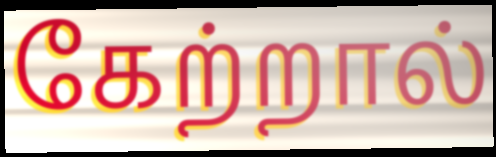
கேற்றால்